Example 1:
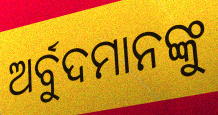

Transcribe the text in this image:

ଅର୍ବୁଦମାନଙ୍କୁ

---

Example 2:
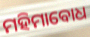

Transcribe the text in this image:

ମହିମାବୋଧ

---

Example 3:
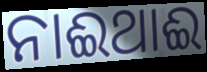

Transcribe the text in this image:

ନାଈଥାଈ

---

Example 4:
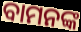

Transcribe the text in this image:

ବାମନଙ୍କ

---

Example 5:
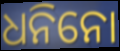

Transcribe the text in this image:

ଧନିନୋ